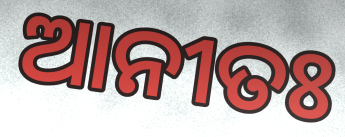
ଆନୀତଃ